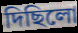
দিছিলো